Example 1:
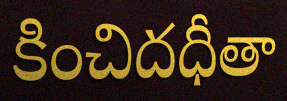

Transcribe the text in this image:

కించిదధీతా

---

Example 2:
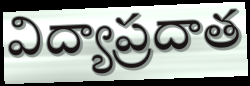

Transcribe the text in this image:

విద్యాప్రదాత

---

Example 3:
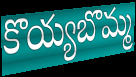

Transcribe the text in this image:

కొయ్యబొమ్మ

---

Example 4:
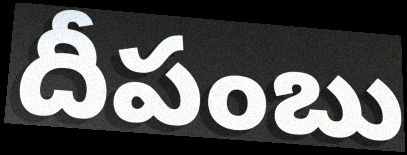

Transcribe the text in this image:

దీపంబు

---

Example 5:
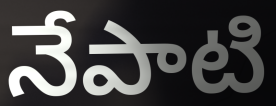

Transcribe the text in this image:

నేపాటి